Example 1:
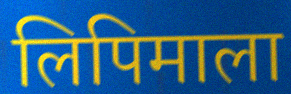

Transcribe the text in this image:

लिपिमाला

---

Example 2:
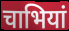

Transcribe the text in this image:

चाभियां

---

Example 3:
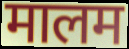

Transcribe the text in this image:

मालम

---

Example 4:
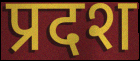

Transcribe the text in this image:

प्रदश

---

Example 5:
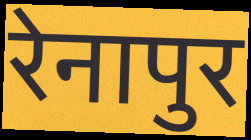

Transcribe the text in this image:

रेनापुर